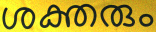
ശക്തരും